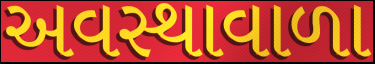
અવસ્થાવાળા